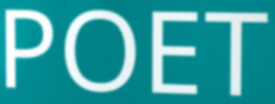
POET